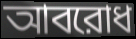
আবরোধ